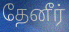
தேனீர்